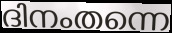
ദിനംതന്നെ